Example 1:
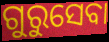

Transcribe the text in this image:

ଗୁରୁସେବା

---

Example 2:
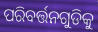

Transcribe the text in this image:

ପରିବର୍ତ୍ତନଗୁଡିକୁ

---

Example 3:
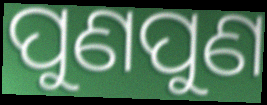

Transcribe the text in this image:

ପୁଣପୁଣ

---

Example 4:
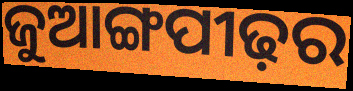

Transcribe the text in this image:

ଜୁଆଙ୍ଗପୀଢ଼ର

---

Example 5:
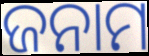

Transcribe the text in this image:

ଜନାମ